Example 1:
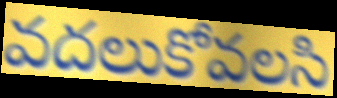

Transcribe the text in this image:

వదలుకోవలసి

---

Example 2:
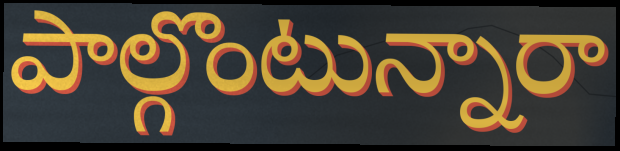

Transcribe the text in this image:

పాల్గొంటున్నారా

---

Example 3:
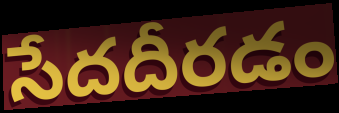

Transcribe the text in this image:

సేదదీరడం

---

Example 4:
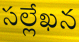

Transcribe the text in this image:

సల్లేఖన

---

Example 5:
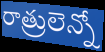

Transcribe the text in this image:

రాత్రులెన్నో